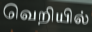
வெறியில்